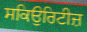
ਸਕਿਉਰਿਟੀਜ਼